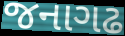
જનાગઢ